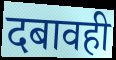
दबावही